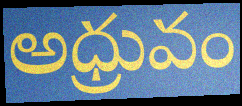
అధ్రువం